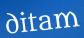
ditam